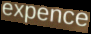
expence